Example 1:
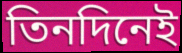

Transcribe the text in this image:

তিনদিনেই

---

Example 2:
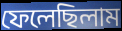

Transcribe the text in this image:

ফেলেছিলাম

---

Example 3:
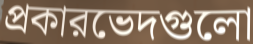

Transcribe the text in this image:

প্রকারভেদগুলো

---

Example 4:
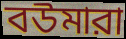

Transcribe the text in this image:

বউমারা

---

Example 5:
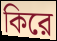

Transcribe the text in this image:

কিরে